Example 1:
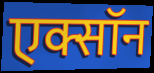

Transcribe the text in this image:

एक्सॉन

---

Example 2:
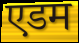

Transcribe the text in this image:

एडम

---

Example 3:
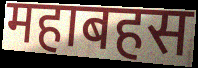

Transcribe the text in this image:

महाबहस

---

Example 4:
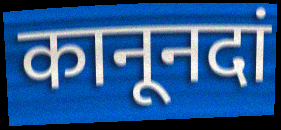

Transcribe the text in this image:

कानूनदां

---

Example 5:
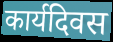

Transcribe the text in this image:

कार्यदिवस